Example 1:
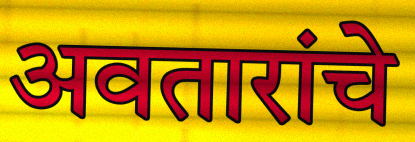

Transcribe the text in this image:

अवतारांचे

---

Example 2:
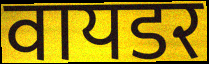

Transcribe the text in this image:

वायडर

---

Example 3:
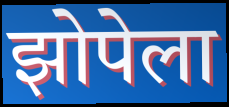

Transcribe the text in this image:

झोपेला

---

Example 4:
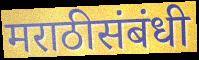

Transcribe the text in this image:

मराठीसंबंधी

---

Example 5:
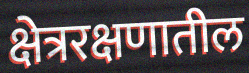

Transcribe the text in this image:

क्षेत्ररक्षणातील